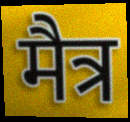
मैत्र